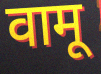
वामू